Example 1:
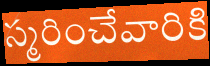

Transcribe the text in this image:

స్మరించేవారికి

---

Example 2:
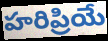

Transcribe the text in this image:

హరిప్రియే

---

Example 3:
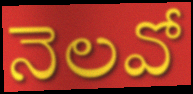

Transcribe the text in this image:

నెలవో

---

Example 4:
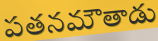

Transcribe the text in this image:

పతనమౌతాడు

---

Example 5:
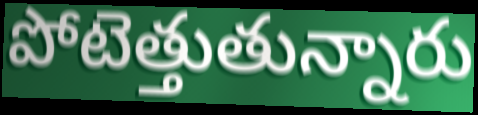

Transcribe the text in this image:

పోటెత్తుతున్నారు